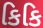
કિકિ